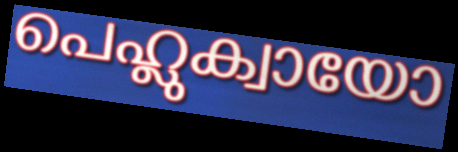
പെഹ്ലുക്വായോ